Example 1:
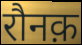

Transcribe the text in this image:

रौनक़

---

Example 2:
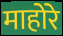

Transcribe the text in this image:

माहोरे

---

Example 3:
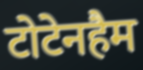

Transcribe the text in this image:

टोटेनहैम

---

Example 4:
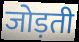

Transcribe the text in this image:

जोड़ती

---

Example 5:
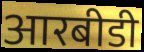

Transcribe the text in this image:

आरबीडी